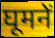
घूमनें